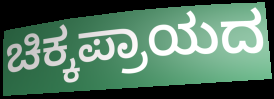
ಚಿಕ್ಕಪ್ರಾಯದ